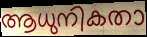
ആധുനികതാ